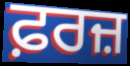
ਫ਼ਰਜ਼